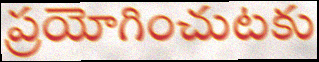
ప్రయోగించుటకు